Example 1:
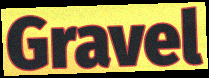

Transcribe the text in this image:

Gravel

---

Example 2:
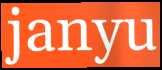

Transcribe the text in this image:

janyu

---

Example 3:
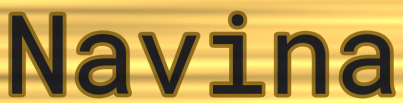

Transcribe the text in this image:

Navina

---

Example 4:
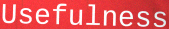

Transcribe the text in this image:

Usefulness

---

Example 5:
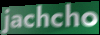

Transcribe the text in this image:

jachcho